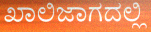
ಖಾಲಿಜಾಗದಲ್ಲಿ